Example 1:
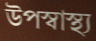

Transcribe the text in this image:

উপস্বাস্থ্য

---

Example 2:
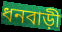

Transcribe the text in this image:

ধনবাড়ী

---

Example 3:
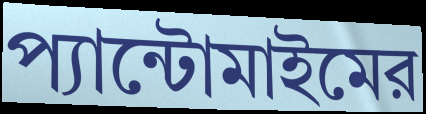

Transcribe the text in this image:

প্যান্টোমাইমের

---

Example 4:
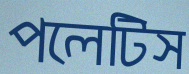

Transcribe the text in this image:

পলেটিস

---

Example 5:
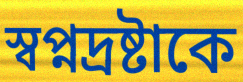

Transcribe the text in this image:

স্বপ্নদ্রষ্টাকে